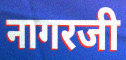
नागरजी